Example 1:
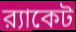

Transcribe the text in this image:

র‍্যাকেট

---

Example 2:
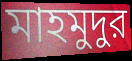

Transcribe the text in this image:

মাহমুদুর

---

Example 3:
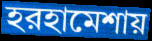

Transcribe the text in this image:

হরহামেশায়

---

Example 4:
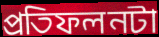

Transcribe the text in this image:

প্রতিফলনটা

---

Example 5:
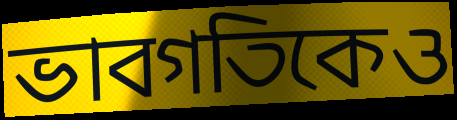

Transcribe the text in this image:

ভাবগতিকেও